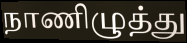
நாணிழுத்து